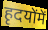
हृदयोंमें